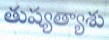
తుష్యత్యాశు